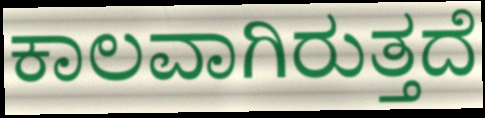
ಕಾಲವಾಗಿರುತ್ತದೆ